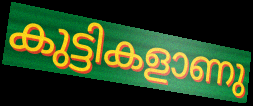
കുട്ടികളാണു